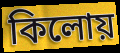
কিলোয়